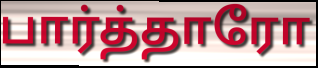
பார்த்தாரோ